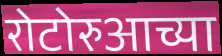
रोटोरुआच्या